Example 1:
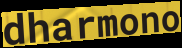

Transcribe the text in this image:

dharmono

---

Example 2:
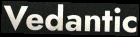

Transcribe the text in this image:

Vedantic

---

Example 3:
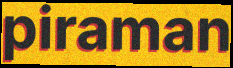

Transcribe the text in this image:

piraman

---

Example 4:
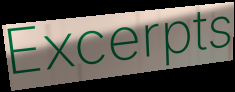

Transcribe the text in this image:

Excerpts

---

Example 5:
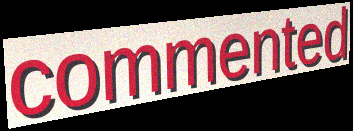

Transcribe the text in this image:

commented